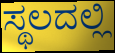
ಸ್ಥಲದಲ್ಲಿ